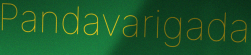
Pandavarigada